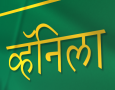
व्हॅनिला